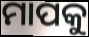
ମାପକୁ